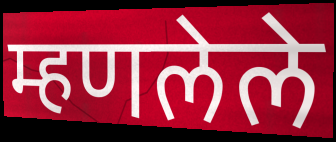
म्हणलेले